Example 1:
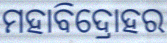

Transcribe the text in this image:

ମହାବିଦ୍ରୋହର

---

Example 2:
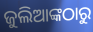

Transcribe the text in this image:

ଜୁଲିଆଙ୍କଠାରୁ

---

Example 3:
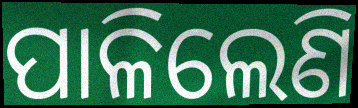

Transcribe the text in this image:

ପାଳିଲେଣି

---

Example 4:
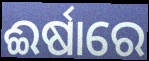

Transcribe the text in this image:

ଈର୍ଷାରେ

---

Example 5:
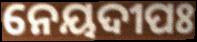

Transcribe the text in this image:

ନେୟଦୀପଃ